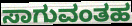
ಸಾಗುವಂತಹ